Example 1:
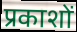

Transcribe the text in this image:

प्रकाशों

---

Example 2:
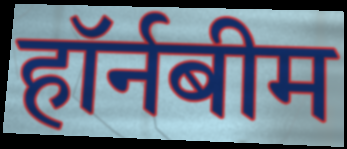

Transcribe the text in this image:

हॉर्नबीम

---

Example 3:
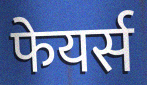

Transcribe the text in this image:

फेयर्स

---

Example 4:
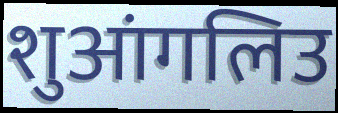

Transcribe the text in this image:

शुआंगलिउ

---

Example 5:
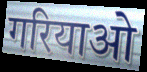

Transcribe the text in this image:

गरियाओ